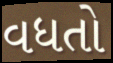
વધતો